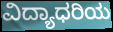
ವಿದ್ಯಾಧರಿಯ